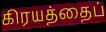
கிரயத்தைப்